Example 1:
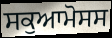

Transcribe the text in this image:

ਸਕੁਆਮੋਸਸ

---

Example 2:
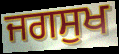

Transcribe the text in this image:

ਜਗਸੁਖ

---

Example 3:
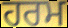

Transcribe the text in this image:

ਹਰਮ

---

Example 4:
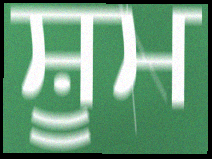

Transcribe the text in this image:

ਸ਼ੂਮ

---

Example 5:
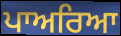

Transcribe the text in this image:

ਪਾਅਰਿਆ